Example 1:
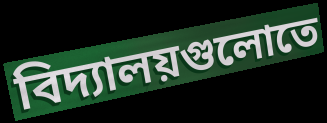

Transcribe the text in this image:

বিদ্যালয়গুলোতে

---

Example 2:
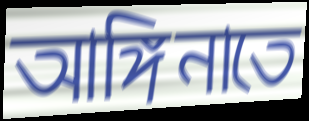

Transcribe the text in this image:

আঙ্গিনাতে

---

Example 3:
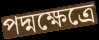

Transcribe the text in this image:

পদ্মক্ষেত্রে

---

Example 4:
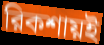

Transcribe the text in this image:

রিকশায়ই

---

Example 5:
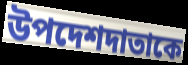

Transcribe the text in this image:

উপদেশদাতাকে